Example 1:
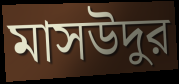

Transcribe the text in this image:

মাসউদুর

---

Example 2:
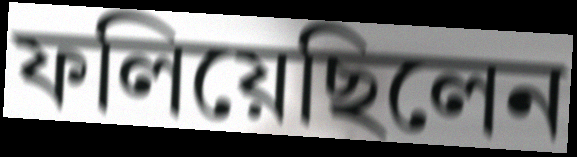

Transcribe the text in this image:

ফলিয়েছিলেন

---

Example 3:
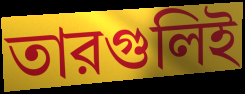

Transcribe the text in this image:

তারগুলিই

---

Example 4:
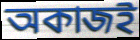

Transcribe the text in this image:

অকাজই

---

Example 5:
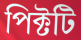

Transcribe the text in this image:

পিক্টটি